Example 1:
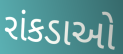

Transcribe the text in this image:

રાંકડાઓ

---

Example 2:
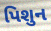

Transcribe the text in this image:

પિશુન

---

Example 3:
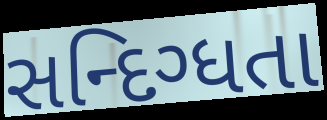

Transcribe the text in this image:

સન્દિગ્ધતા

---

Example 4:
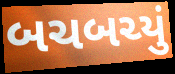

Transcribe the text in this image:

બચબચ્યું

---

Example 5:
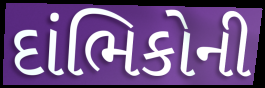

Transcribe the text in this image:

દાંભિકોની